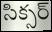
సిక్సర్